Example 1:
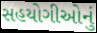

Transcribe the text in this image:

સહયોગીઓનું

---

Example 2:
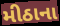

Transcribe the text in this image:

મીઠાના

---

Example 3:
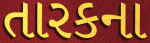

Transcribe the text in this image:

તારકના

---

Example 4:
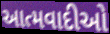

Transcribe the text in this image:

આત્મવાદીઓ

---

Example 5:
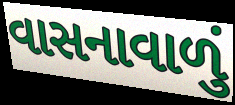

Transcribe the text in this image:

વાસનાવાળું